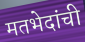
मतभेदांची